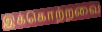
இக்கொற்றவை